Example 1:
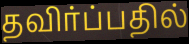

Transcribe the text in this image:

தவிர்ப்பதில்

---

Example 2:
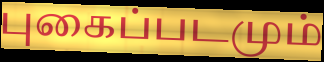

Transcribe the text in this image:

புகைப்படமும்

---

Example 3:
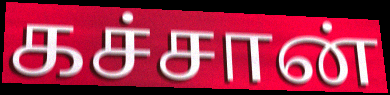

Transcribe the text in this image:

கச்சான்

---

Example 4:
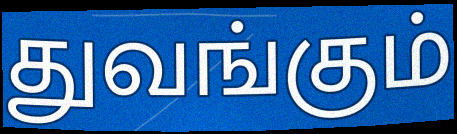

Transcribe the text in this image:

துவங்கும்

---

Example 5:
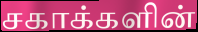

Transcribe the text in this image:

சகாக்களின்